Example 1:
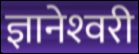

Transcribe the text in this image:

ज्ञानेश्‍वरी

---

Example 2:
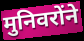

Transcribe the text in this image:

मुनिवरोंने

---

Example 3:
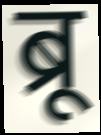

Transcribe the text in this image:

ब्रू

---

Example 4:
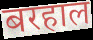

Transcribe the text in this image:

बरहाल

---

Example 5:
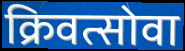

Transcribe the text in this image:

क्रिवत्सोवा